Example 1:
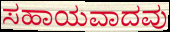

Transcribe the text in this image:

ಸಹಾಯವಾದವು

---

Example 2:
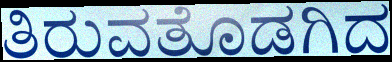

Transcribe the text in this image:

ತಿರುವತೊಡಗಿದ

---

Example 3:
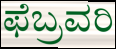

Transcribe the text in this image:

ಫೆಬ್ರವರಿ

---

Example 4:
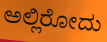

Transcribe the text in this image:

ಅಲ್ಲಿರೋದು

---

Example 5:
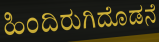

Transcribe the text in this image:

ಹಿಂದಿರುಗಿದೊಡನೆ